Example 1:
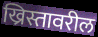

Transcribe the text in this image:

ख्रिस्तावरील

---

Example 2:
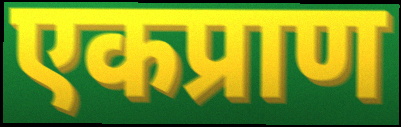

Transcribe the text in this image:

एकप्राण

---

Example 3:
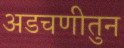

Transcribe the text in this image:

अडचणीतुन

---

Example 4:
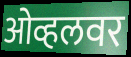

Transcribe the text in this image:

ओव्हलवर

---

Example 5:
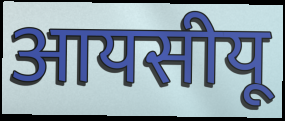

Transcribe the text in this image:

आयसीयू